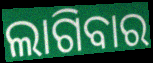
ଲାଗିବାର